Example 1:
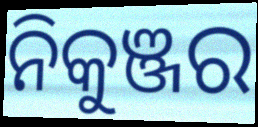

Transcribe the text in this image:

ନିକୁଞ୍ଜର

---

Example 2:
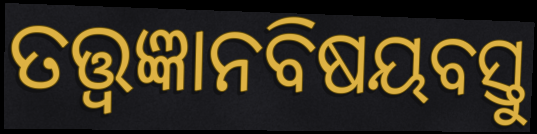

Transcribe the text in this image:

ତତ୍ତ୍ୱଜ୍ଞାନବିଷୟବସ୍ତୁ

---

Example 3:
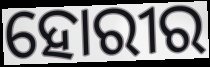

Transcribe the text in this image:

ହୋରୀର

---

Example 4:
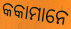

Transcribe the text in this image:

କକାମାନେ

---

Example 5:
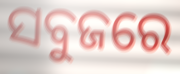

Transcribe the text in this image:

ସବୁଜରେ